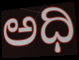
ಅಧಿ